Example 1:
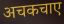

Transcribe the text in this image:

अचकचाए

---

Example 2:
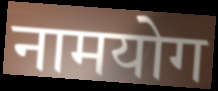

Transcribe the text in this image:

नामयोग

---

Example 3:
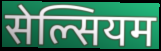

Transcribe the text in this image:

सेल्सियम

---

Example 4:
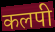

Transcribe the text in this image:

कलपी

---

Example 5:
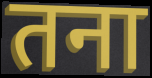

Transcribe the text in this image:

तना